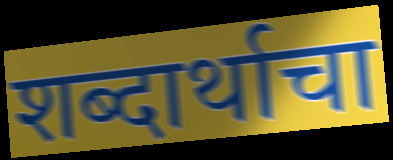
शब्दार्थाचा